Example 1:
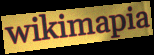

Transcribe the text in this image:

wikimapia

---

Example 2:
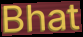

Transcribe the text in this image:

Bhat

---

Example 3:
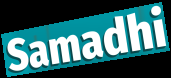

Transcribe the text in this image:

Samadhi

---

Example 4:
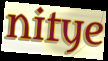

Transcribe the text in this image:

nitye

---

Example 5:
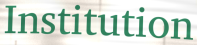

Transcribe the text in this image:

Institution